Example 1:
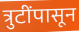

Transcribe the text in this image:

त्रुटींपासून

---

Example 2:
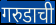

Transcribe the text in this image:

गरुडाची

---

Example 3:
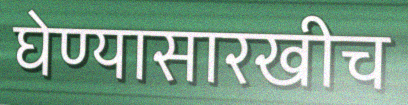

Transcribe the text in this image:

घेण्यासारखीच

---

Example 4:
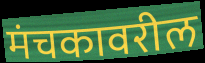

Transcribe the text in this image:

मंचकावरील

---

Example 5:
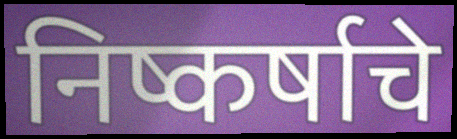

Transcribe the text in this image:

निष्कर्षाचे